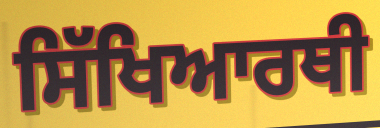
ਸਿੱਖਿਆਰਥੀ